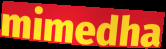
mimedha